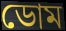
ডোম